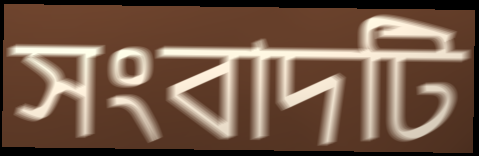
সংবাদটি